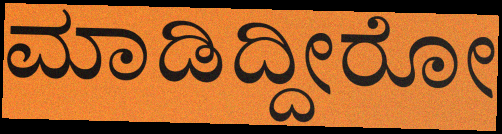
ಮಾಡಿದ್ದೀರೋ